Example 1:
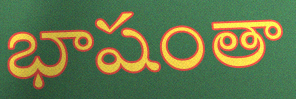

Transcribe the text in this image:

భాషంతా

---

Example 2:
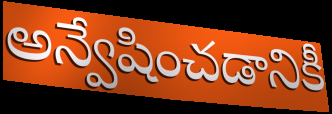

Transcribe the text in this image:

అన్వేషించడానికీ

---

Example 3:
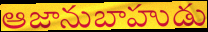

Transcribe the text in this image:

ఆజానుబాహుడు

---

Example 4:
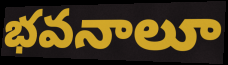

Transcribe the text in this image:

భవనాలూ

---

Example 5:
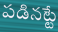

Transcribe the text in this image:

పడినట్టే